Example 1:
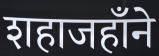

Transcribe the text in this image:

शहाजहाँने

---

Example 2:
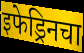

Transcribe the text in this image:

इफेड्रिनचा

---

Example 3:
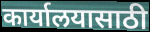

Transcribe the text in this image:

कार्यालयासाठी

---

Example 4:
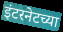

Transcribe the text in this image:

इंटरनेटच्या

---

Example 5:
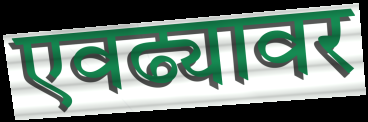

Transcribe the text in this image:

एवढ्यावर